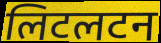
लिटलटन